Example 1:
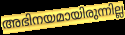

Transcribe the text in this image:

അഭിനയമായിരുന്നില്ല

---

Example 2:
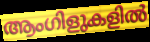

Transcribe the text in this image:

ആംഗിളുകളിൽ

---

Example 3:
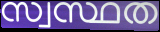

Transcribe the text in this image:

സ്വസ്ഥത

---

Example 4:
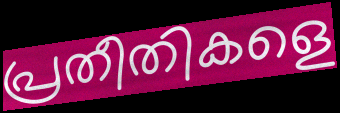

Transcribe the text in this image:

പ്രതീതികളെ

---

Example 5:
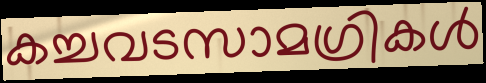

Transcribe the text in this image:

കച്ചവടസാമഗ്രികൾ